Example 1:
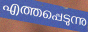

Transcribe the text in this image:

എത്തപ്പെടുന്നു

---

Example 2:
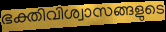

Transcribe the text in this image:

ഭക്തിവിശ്വാസങ്ങളുടെ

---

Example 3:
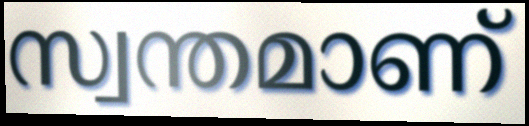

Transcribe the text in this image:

സ്വന്തമാണ്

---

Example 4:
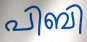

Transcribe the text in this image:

പിബി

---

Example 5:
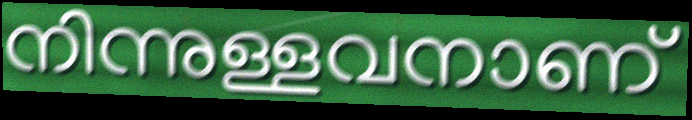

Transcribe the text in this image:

നിന്നുള്ളവനാണ്